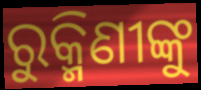
ରୁକ୍ମିଣୀଙ୍କୁ